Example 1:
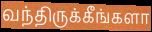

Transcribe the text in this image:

வந்திருக்கீங்களா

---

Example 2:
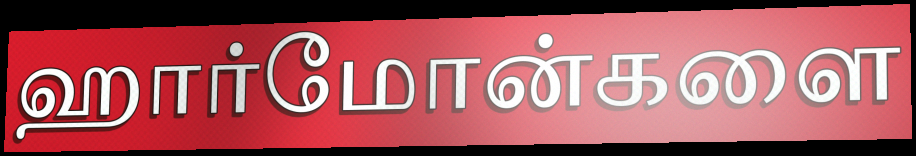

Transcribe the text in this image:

ஹார்மோன்களை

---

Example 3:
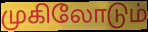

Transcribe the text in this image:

முகிலோடும்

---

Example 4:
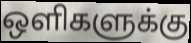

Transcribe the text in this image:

ஒளிகளுக்கு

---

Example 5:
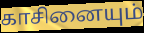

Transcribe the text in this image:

காசினையும்